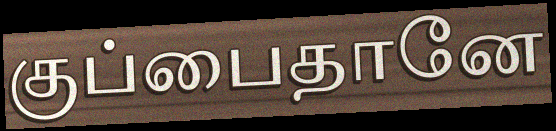
குப்பைதானே